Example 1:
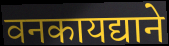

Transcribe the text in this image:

वनकायद्याने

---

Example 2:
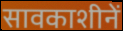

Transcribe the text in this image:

सावकाशीनें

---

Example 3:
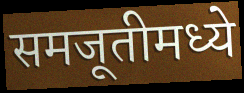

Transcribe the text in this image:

समजूतीमध्ये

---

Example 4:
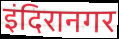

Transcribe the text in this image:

इंदिरानगर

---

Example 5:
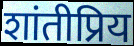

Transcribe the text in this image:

शांतीप्रिय